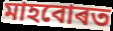
মাহবোৰত